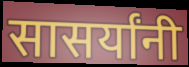
सासर्यांनी